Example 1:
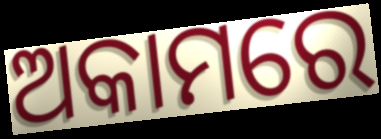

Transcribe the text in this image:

ଅକାମରେ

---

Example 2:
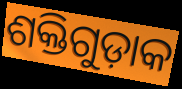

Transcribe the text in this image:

ଶକ୍ତିଗୁଡ଼ାକ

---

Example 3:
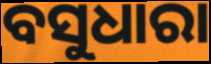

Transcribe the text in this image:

ବସୁଧାରା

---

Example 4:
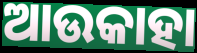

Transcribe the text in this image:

ଆଉକାହା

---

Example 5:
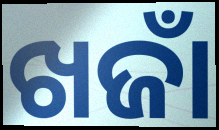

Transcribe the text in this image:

ଖଜାଁ